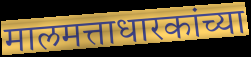
मालमत्ताधारकांच्या